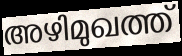
അഴിമുഖത്ത്